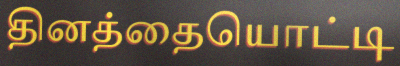
தினத்தையொட்டி